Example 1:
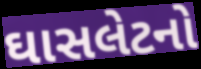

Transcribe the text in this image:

ઘાસલેટનો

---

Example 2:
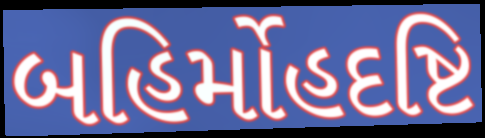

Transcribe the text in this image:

બહિર્મોહદષ્ટિ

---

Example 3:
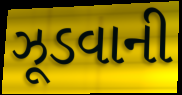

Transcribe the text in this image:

ઝૂડવાની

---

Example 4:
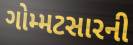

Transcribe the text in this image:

ગોમ્મટસારની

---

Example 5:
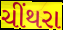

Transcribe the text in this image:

ચીંથરા